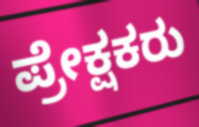
ಪ್ರೇಕ್ಷಕರು